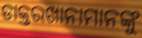
ଡାକ୍ତରଖାନାମାନଙ୍କୁ